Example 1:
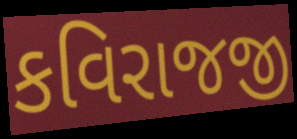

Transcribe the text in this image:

કવિરાજજી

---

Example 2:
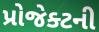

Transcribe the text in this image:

પ્રોજેક્ટની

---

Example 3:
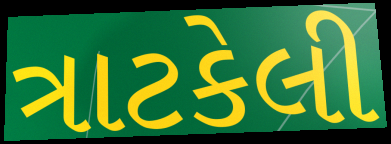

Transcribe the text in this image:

ત્રાટકેલી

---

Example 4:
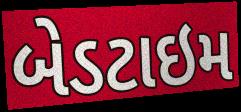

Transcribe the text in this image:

બેડટાઇમ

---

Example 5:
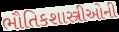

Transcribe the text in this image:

ભૌતિકશાસ્ત્રીઓની